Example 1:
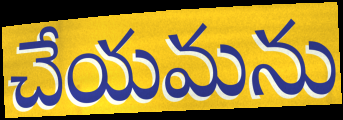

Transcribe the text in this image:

చేయమను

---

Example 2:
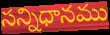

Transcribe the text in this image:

సన్నిధానము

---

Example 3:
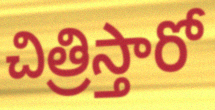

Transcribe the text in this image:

చిత్రిస్తారో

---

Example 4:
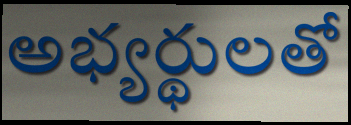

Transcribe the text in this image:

అభ్యర్థులతో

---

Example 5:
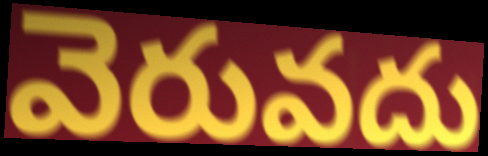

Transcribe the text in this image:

వెరువదు